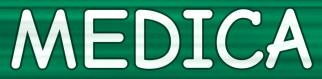
MEDICA